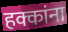
हक्कांना